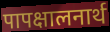
पापक्षालनार्थ